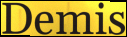
Demis